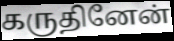
கருதினேன்